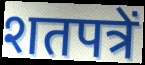
शतपत्रें